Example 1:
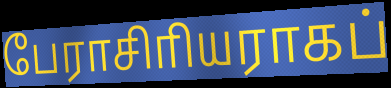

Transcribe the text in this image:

பேராசிரியராகப்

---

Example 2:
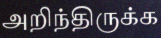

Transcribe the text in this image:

அறிந்திருக்க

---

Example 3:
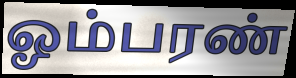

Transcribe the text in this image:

ஓம்பரண்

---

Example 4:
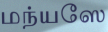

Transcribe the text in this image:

மந்யஸே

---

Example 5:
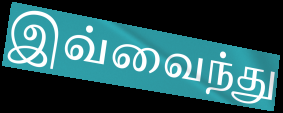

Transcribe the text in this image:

இவ்வைந்து